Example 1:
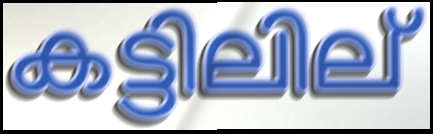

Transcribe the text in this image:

കട്ടിലില്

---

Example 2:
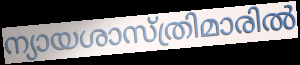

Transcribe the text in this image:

ന്യായശാസ്ത്രിമാരിൽ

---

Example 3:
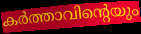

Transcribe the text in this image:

കർത്താവിന്റെയും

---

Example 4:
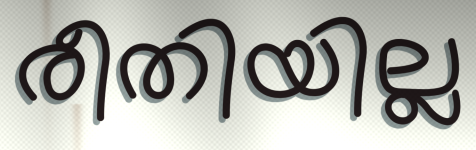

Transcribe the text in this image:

രീതിയില്ല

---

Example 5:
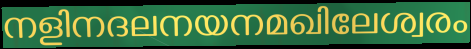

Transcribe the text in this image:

നളിനദലനയനമഖിലേശ്വരം